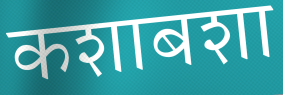
कशाबशा